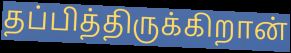
தப்பித்திருக்கிறான்